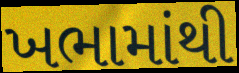
ખભામાંથી